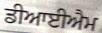
ਡੀਆਈਐਮ